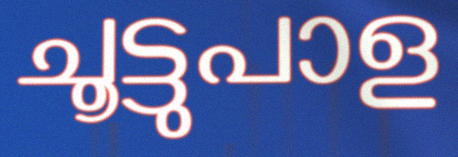
ചൂട്ടുപാള